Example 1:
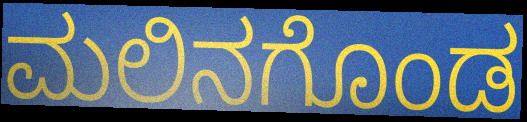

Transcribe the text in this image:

ಮಲಿನಗೊಂಡ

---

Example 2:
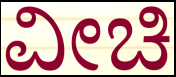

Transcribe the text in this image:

ವೀಚಿ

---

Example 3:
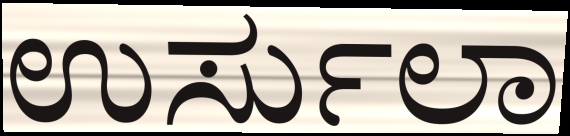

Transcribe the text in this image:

ಉರ್ಸುಲಾ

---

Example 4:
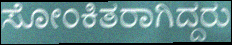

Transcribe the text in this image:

ಸೋಂಕಿತರಾಗಿದ್ದರು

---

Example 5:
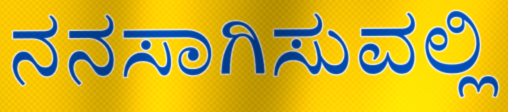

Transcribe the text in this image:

ನನಸಾಗಿಸುವಲ್ಲಿ